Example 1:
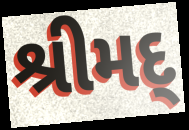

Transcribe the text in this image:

શ્રીમદ્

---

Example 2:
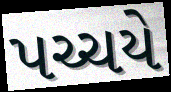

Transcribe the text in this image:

પચ્ચયે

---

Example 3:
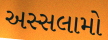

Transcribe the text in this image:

અસ્સલામો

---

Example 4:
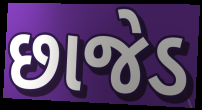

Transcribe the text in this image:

છાજેડ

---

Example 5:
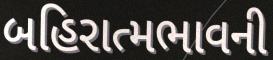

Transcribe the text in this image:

બહિરાત્મભાવની